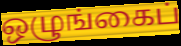
ஒழுங்கைப்